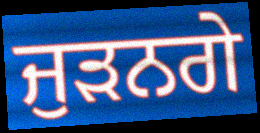
ਜੁਡ਼ਨਗੇ